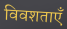
विवशताएँ